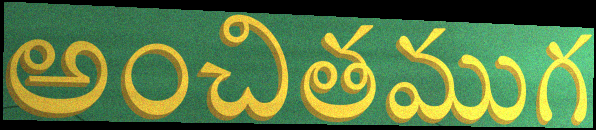
అంచితముగ